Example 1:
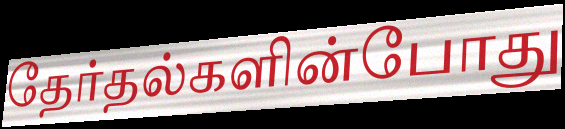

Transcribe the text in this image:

தேர்தல்களின்போது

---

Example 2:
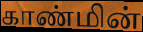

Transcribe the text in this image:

காண்மின்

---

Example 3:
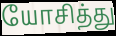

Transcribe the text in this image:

யோசித்து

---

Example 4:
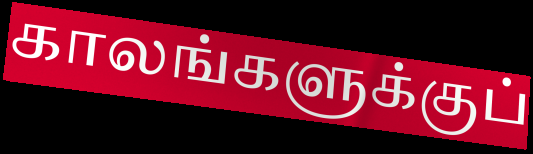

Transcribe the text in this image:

காலங்களுக்குப்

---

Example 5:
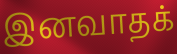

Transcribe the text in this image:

இனவாதக்